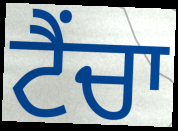
ਟੈਂਚਾ